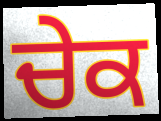
ਚੇਕ